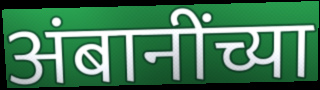
अंबानींच्या